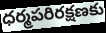
ధర్మపరిరక్షణకు